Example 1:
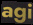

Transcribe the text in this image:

agi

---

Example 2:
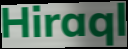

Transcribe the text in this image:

Hiraql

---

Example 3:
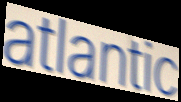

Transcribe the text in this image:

atlantic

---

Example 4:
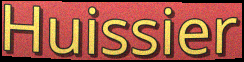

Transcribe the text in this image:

Huissier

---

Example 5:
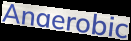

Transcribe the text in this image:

Anaerobic